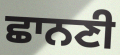
ਛਾਨਣੀ